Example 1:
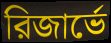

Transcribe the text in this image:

রিজার্ভে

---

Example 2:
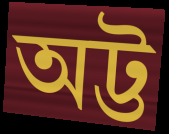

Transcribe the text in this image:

অট্ট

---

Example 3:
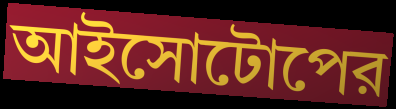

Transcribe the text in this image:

আইসোটোপের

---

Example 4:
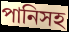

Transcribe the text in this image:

পানিসহ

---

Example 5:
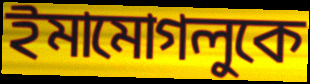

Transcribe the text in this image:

ইমামোগলুকে